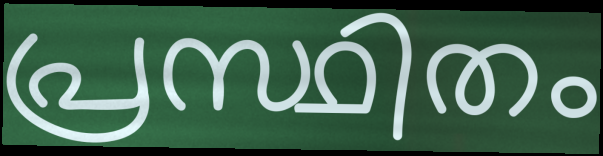
പ്രസ്ഥിതം